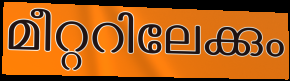
മീറ്ററിലേക്കും